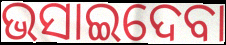
ଭସାଇଦେବା